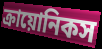
ক্রায়োনিকস